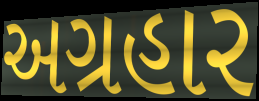
અગ્રહાર